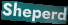
Sheperd